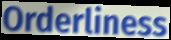
Orderliness